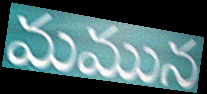
మమున